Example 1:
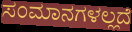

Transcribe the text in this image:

ಸಂಮಾನಗಳಲ್ಲದೆ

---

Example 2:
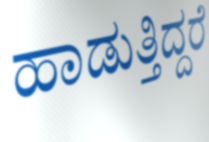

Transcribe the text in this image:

ಹಾಡುತ್ತಿದ್ದರೆ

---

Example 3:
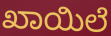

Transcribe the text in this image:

ಖಾಯಿಲೆ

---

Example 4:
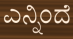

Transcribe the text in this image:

ಎನ್ನಿಂದೆ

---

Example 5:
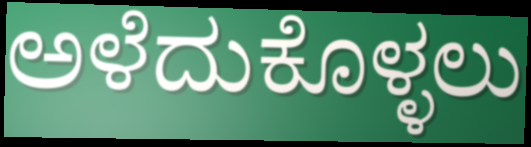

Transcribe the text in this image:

ಅಳೆದುಕೊಳ್ಳಲು